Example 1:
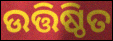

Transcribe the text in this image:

ଉତ୍ତିଷ୍ଠିତ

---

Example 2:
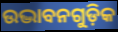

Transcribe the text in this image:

ଉଦ୍ଭାବନଗୁଡ଼ିକ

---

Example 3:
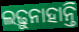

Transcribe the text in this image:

ଲଢ଼ୁନାହାନ୍ତି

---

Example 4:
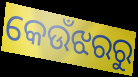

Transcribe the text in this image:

କେଉଁଝରରୁ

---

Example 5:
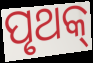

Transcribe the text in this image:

ପୃଥକ୍